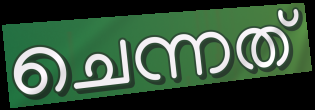
ചെന്നത്